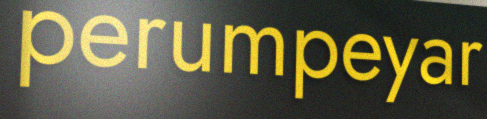
perumpeyar